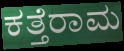
ಕತ್ತೆರಾಮ